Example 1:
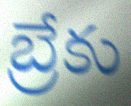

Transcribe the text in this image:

బ్రేకు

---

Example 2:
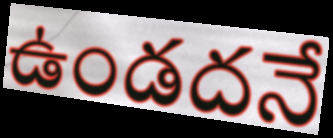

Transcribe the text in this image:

ఉండదనే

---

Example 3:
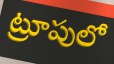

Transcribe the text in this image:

ట్రూపులో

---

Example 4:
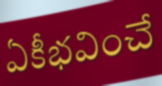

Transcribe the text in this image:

ఏకీభవించే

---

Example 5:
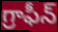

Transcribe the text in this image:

గ్రాఫీన్